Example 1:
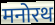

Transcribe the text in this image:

मनोरथ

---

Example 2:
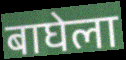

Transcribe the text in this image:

बाघेला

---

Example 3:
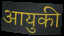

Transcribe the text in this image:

आयुकी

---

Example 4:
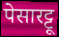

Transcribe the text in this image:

पेसारट्टू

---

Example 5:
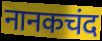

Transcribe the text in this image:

नानकचंद